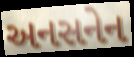
અનસનેન